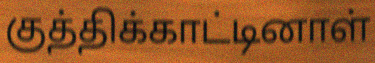
குத்திக்காட்டினாள்